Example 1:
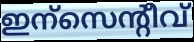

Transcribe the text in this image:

ഇന്സെന്റീവ്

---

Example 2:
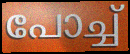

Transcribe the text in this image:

പോച്ച്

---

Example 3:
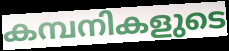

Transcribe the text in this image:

കമ്പനികളുടെ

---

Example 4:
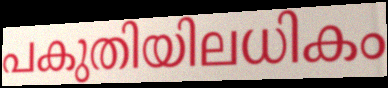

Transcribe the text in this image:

പകുതിയിലധികം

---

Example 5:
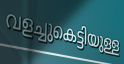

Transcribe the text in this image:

വളച്ചുകെട്ടിയുള്ള